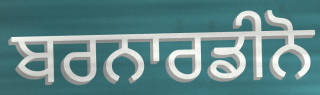
ਬਰਨਾਰਡੀਨੋ